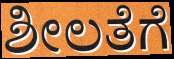
ಶೀಲತೆಗೆ